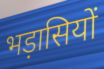
भड़ासियों